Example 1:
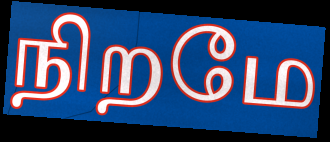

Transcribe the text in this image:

நிறமே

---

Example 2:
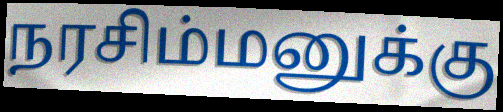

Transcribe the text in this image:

நரசிம்மனுக்கு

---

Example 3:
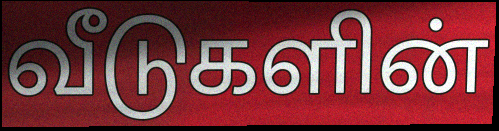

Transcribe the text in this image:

வீடுகளின்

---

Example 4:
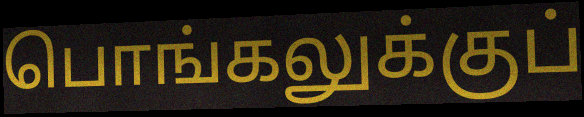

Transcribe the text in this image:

பொங்கலுக்குப்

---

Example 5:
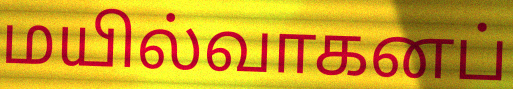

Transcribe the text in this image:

மயில்வாகனப்